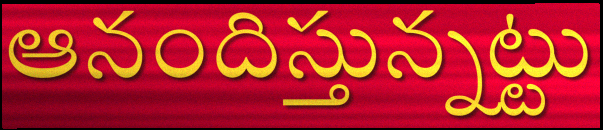
ఆనందిస్తున్నట్టు